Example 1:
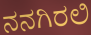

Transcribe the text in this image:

ನನಗಿರಲಿ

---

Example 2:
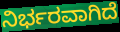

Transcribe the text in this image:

ನಿರ್ಭರವಾಗಿದೆ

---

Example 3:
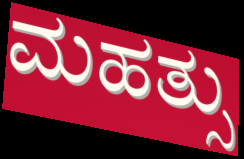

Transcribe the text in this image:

ಮಹತ್ಸು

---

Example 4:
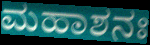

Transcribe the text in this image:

ಮಹಾಶನಃ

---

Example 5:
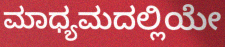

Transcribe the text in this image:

ಮಾಧ್ಯಮದಲ್ಲಿಯೇ